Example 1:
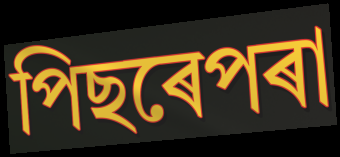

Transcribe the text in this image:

পিছৰেপৰা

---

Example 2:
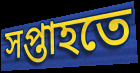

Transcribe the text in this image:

সপ্তাহতে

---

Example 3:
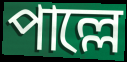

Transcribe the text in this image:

পাল্লে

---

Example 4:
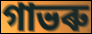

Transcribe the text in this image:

গাভৰু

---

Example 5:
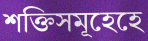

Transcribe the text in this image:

শক্তিসমূহেহে